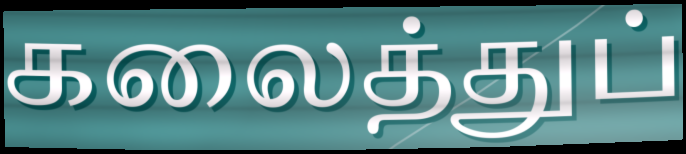
கலைத்துப்